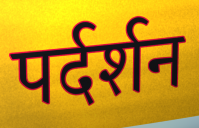
पर्दर्शन